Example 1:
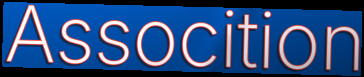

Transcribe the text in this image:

Assocition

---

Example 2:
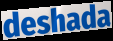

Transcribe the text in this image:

deshada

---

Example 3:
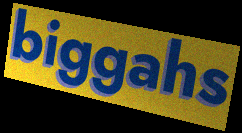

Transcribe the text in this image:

biggahs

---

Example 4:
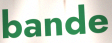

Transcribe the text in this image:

bande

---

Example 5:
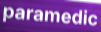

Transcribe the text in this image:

paramedic